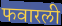
फवारली